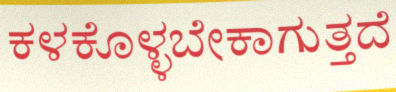
ಕಳಕೊಳ್ಳಬೇಕಾಗುತ್ತದೆ